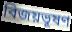
বিজয়ভূষণ